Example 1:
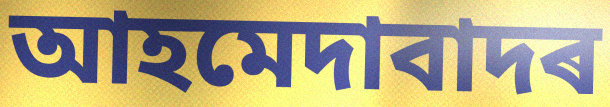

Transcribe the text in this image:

আহমেদাবাদৰ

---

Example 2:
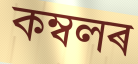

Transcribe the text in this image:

কম্বলৰ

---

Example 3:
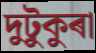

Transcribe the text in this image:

দুটুকুৰা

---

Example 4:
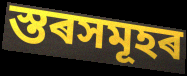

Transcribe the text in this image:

স্তৰসমূহৰ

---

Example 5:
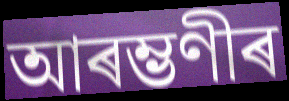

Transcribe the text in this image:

আৰম্ভণীৰ